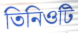
তিনিওটি